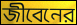
জীবেনের